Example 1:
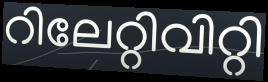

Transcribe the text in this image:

റിലേറ്റിവിറ്റി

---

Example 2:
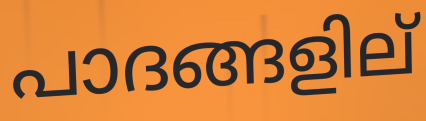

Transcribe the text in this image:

പാദങ്ങളില്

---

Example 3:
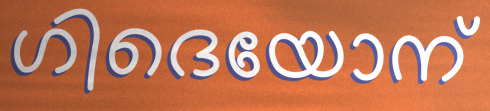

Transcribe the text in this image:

ഗിദെയോന്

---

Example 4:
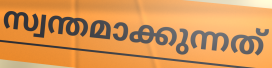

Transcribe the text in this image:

സ്വന്തമാക്കുന്നത്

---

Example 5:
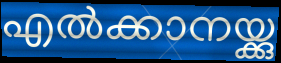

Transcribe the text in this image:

എൽക്കാനയ്ക്കു